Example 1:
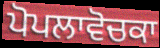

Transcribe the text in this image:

ਪੋਪਲਾਵੋਚਕਾ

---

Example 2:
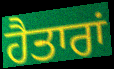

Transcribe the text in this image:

ਹੈਤਾਰਾਂ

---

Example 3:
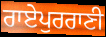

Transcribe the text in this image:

ਰਾਏਪੁਰਰਾਣੀ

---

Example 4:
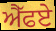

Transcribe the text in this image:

ਐੱਫਏ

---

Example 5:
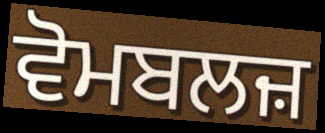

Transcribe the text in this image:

ਵੋਮਬਲਜ਼